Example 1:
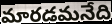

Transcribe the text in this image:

మారడమనేది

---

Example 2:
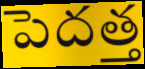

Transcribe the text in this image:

పెదత్త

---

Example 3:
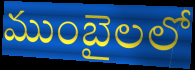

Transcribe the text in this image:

ముంబైలలో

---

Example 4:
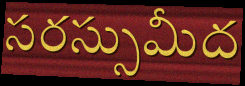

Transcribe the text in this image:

సరస్సుమీద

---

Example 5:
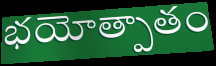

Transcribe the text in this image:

భయోత్పాతం